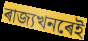
ৰাজ্যখনৰেই